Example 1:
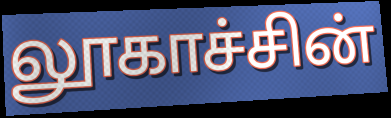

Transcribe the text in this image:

லூகாச்சின்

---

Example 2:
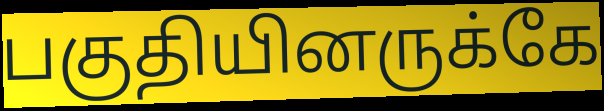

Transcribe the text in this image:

பகுதியினருக்கே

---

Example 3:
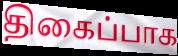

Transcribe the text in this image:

திகைப்பாக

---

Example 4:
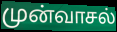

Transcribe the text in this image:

முன்வாசல்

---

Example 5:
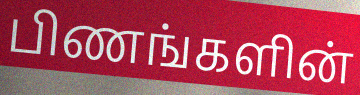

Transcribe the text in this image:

பிணங்களின்